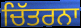
ਚਿੱਤਰਨਾ